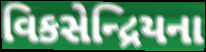
વિકસેન્દ્રિયના